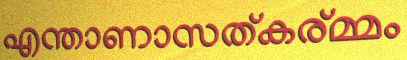
എന്താണാസത്കര്മ്മം